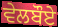
ਵੇਲਬੌਏ